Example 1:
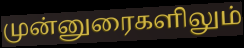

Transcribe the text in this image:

முன்னுரைகளிலும்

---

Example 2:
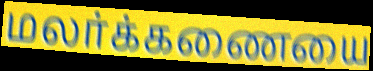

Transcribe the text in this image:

மலர்க்கணையை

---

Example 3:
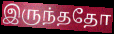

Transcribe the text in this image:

இருந்ததோ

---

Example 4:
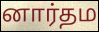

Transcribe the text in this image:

னார்தம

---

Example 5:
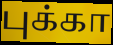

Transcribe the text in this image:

புக்கா